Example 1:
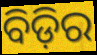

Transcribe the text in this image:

ବିଡ଼ିର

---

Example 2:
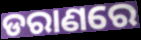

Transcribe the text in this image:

ଡରାଣରେ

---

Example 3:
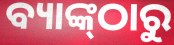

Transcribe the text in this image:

ବ୍ୟାଙ୍କ୍‌ଠାରୁ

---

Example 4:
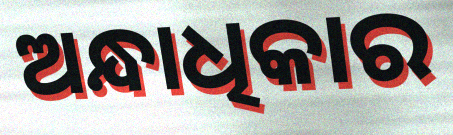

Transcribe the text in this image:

ଅନ୍ଧାଧିକାର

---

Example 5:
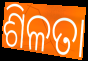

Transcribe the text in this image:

ଶିଳତା